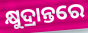
କ୍ଷୁଦ୍ରାନ୍ତରେ